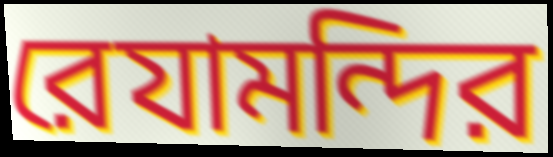
রেযামন্দির